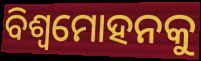
ବିଶ୍ଵମୋହନକୁ